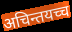
अचिन्तयच्च